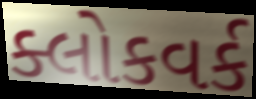
ક્લોકવર્ક